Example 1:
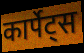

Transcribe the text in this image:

कार्पेट्स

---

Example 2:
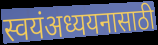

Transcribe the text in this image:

स्वयंअध्ययनासाठी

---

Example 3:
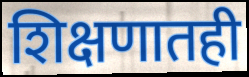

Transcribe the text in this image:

शिक्षणातही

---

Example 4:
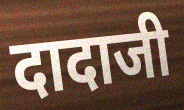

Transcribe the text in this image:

दादाजी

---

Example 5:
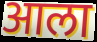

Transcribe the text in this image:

आला